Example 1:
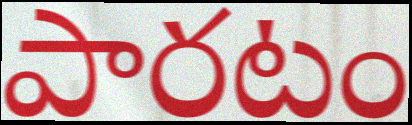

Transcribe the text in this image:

పారటం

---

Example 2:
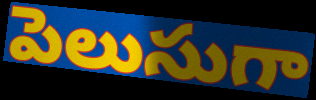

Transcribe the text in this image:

పెలుసుగా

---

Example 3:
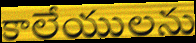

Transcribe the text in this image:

కాలేయులను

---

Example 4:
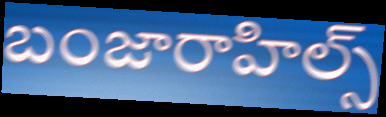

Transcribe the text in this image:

బంజారాహిల్స్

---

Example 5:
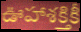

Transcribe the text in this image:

ఊహాశక్తికీ